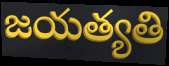
జయత్యతి